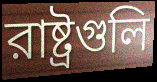
রাষ্ট্রগুলি